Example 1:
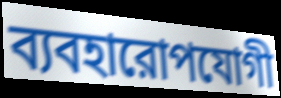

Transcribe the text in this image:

ব্যবহারোপযোগী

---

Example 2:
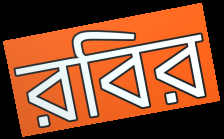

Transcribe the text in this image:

রবির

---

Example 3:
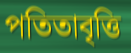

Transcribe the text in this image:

পতিতাবৃত্তি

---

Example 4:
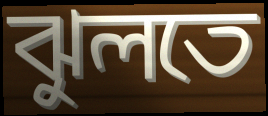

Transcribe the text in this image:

ঝুলতে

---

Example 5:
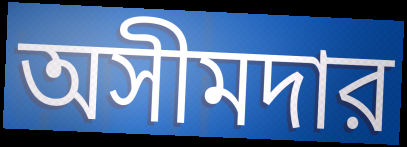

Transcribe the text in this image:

অসীমদার